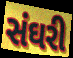
સંઘરી